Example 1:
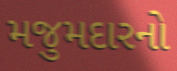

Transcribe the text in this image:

મજુમદારનો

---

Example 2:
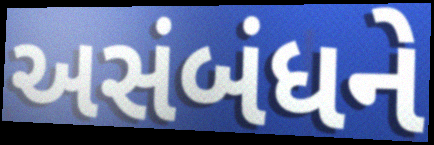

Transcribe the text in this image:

અસંબંધને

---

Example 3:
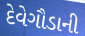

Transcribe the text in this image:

દેવેગૌડાની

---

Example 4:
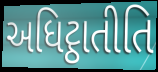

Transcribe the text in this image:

અધિટ્ઠાતીતિ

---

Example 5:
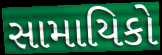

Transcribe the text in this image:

સામાયિકો